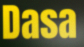
Dasa